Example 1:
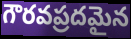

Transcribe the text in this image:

గౌరవప్రదమైన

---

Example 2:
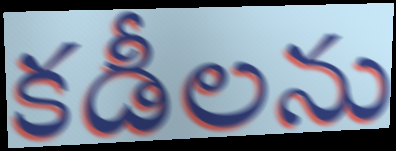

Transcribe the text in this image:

కడీలను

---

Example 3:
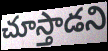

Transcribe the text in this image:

చూస్తాడని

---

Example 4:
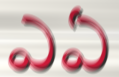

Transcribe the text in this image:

ఎఏ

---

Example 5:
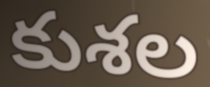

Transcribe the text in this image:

కుశల